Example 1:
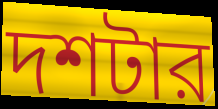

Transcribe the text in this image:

দশটার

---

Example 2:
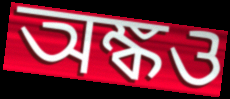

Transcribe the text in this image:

অঙ্কও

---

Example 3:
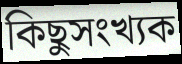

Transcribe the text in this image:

কিছুসংখ্যক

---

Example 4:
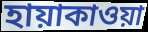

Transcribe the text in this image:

হায়াকাওয়া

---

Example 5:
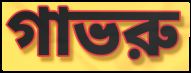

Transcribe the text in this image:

গাভরু